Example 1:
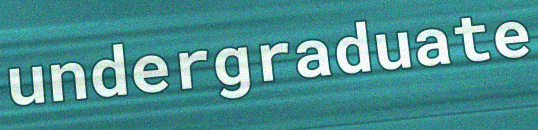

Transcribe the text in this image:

undergraduate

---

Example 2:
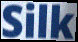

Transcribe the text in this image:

Silk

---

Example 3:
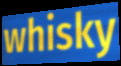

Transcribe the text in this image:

whisky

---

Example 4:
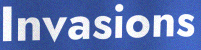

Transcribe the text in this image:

Invasions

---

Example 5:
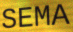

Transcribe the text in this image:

SEMA